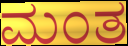
ಮಂತ